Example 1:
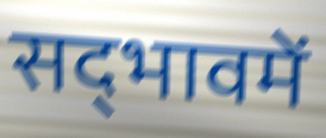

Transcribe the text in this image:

सद्भावमें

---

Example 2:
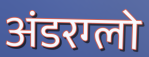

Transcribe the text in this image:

अंडरग्लो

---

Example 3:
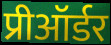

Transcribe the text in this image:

प्रीऑर्डर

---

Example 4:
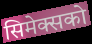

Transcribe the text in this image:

सिमेक्सको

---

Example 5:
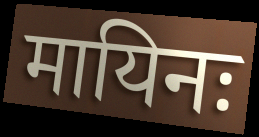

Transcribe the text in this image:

मायिनः